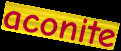
aconite